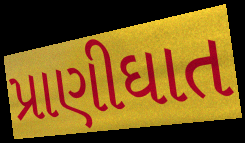
પ્રાણીઘાત